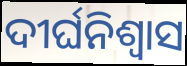
ଦୀର୍ଘନିଶ୍ବାସ